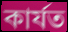
কার্যত